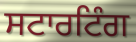
ਸਟਾਰਟਿੰਗ